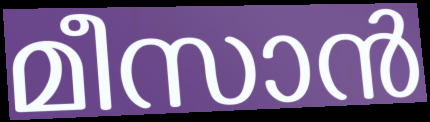
മീസാൻ